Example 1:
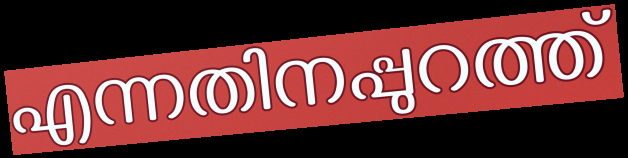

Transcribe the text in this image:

എന്നതിനപ്പുറത്ത്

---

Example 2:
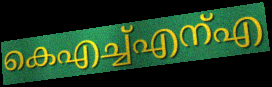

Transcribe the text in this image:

കെഎച്ച്എന്എ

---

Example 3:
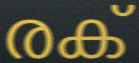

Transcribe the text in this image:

രക്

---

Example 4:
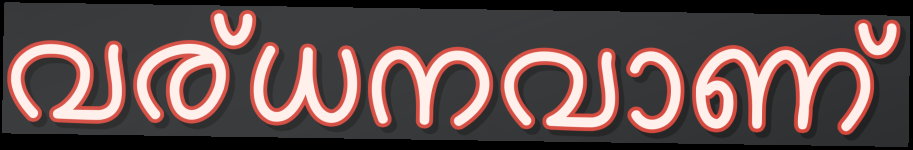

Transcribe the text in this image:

വര്ധനവാണ്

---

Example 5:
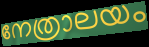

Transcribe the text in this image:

നേത്രാലയം